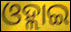
ଓହ୍ଲାଇ